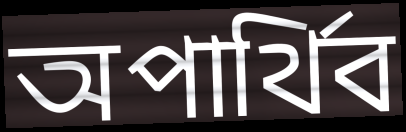
অপার্থিব